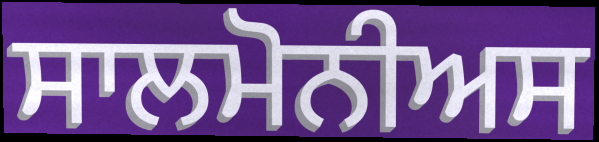
ਸਾਲਮੋਨੀਅਸ